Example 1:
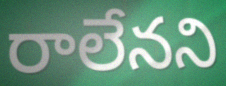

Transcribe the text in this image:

రాలేనని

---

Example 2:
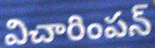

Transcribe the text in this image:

విచారింపన్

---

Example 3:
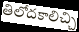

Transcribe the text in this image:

తిలోదకాలిచ్చి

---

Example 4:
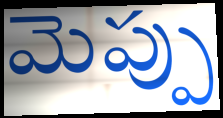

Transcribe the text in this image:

మెప్పు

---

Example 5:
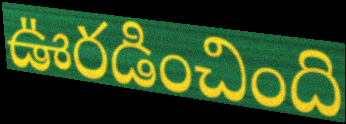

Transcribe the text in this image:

ఊరడించింది